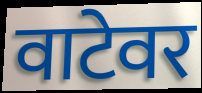
वाटेवर